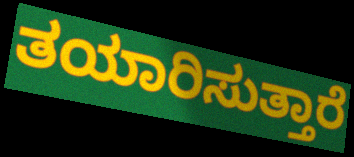
ತಯಾರಿಸುತ್ತಾರೆ